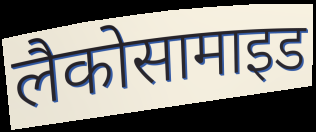
लैकोसामाइड